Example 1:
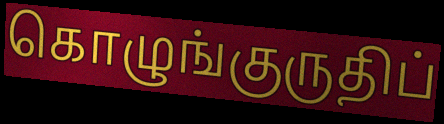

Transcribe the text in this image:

கொழுங்குருதிப்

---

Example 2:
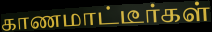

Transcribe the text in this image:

காணமாட்டீர்கள்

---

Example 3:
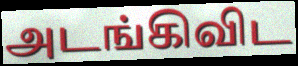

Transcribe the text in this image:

அடங்கிவிட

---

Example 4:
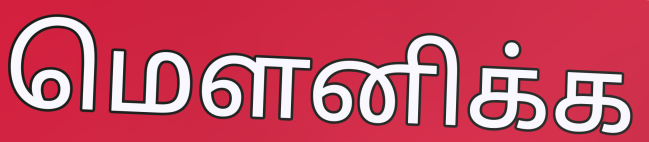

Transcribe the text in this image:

மெளனிக்க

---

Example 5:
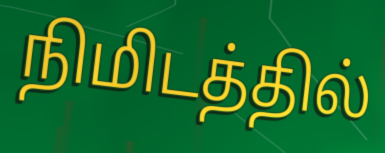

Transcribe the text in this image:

நிமிடத்தில்